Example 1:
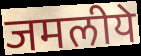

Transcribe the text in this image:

जमलीये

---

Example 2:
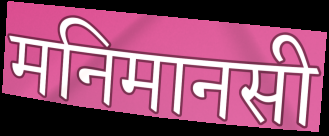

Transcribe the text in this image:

मनिमानसी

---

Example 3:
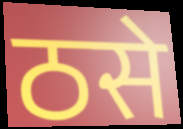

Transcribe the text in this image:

ठसे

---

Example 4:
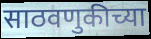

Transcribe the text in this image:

साठवणुकीच्या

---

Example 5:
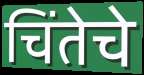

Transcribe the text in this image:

चिंतेचे